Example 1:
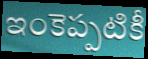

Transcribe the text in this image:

ఇంకెప్పటికీ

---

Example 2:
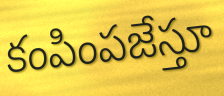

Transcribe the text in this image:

కంపింపజేస్తూ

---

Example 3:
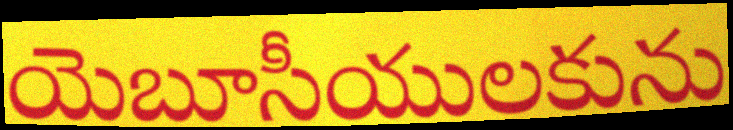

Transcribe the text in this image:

యెబూసీయులకును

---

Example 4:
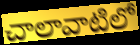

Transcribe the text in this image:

చాలావాటిలో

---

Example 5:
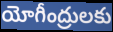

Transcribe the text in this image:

యోగీంద్రులకు